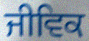
ਜੀਵਿਕ